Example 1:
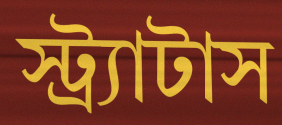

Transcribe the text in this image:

স্ট্র্যাটাস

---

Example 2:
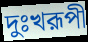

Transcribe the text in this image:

দুঃখরূপী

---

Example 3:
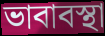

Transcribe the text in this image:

ভাবাবস্থা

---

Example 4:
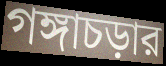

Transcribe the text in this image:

গঙ্গাচড়ার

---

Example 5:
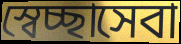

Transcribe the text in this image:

স্বেচ্ছাসেবা